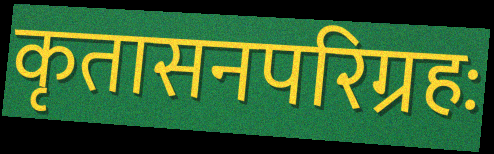
कृतासनपरिग्रहः